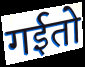
गईतो